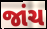
જાંચ